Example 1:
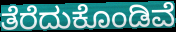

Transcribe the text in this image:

ತೆರೆದುಕೊಂಡಿವೆ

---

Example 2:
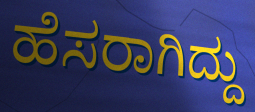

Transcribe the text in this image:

ಹೆಸರಾಗಿದ್ದು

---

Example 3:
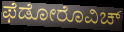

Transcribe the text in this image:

ಫೆಡೋರೊವಿಚ್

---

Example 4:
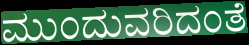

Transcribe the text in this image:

ಮುಂದುವರಿದಂತೆ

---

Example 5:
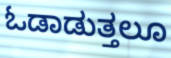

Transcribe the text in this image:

ಓಡಾಡುತ್ತಲೂ